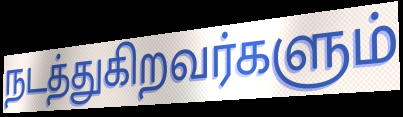
நடத்துகிறவர்களும்